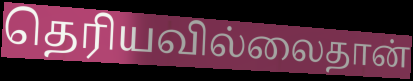
தெரியவில்லைதான்